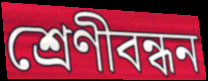
শ্রেণীবন্ধন